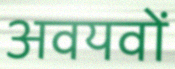
अवयवों